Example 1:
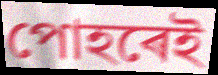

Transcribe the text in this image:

পোহৰেই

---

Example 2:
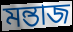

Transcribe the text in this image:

মন্তাজ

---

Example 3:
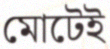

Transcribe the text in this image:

মোটেই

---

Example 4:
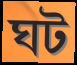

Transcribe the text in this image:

ঘট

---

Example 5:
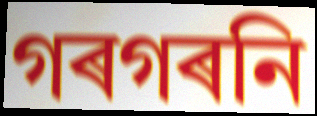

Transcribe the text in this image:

গৰগৰনি